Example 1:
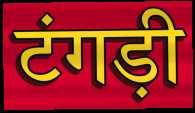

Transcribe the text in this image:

टंगड़ी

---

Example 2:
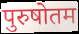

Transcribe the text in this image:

पुरुषोतम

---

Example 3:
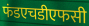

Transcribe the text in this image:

फंडएचडीएफसी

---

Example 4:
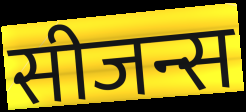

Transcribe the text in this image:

सीजन्स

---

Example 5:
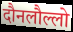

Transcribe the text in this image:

दौनलौल्लो